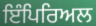
ਇੰਪਿਰਿਅਲ